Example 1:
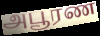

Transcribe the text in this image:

அபூரண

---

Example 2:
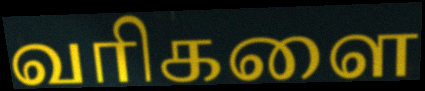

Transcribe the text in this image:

வரிகளை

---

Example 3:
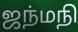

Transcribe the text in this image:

ஜந்மநி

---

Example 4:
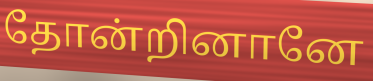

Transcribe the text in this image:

தோன்றினானே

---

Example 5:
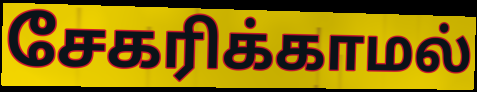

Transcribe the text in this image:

சேகரிக்காமல்